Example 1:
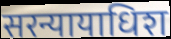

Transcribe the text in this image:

सरन्यायाधिश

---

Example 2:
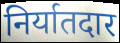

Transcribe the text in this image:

निर्यातदार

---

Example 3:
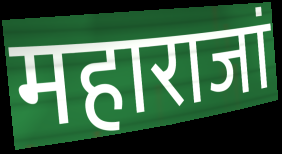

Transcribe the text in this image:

महाराजां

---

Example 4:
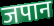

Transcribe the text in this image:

जपान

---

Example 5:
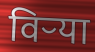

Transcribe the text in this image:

विऱ्या